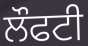
ਲੌਫਟੀ